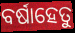
ବର୍ଷାହେତୁ